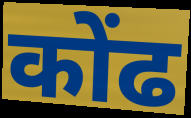
कोंढ